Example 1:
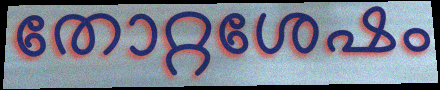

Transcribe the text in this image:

തോറ്റശേഷം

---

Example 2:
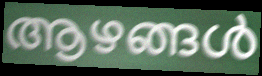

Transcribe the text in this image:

ആഴങ്ങൾ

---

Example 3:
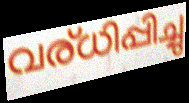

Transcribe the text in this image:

വര്ധിപ്പിച്ചു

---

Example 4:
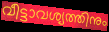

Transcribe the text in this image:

വീട്ടാവശ്യത്തിനും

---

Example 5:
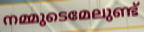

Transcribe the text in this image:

നമ്മുടെമേലുണ്ട്